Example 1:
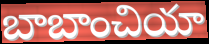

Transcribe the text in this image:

బాబాంచియా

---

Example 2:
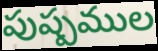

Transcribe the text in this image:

పుష్పముల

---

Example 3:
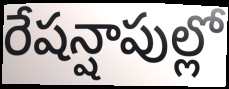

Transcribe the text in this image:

రేషన్షాపుల్లో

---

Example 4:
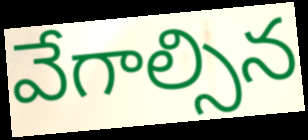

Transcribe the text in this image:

వేగాల్సిన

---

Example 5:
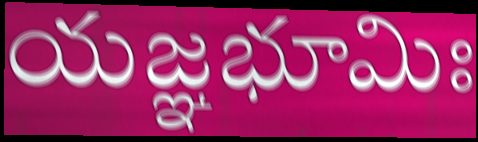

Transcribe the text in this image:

యజ్ఞభూమిః